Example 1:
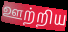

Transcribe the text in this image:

ஊற்றிய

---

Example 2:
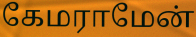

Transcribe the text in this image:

கேமராமேன்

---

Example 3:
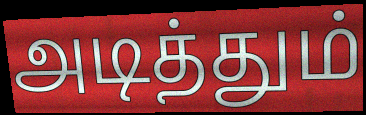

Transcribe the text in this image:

அடித்தும்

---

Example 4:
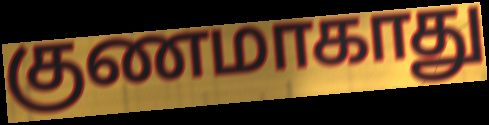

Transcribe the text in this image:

குணமாகாது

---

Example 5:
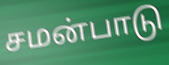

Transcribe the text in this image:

சமன்பாடு